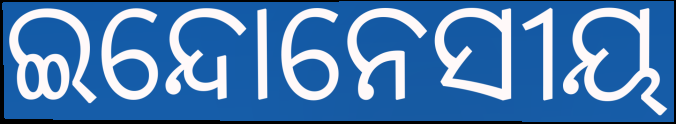
ଇନ୍ଦୋନେସୀୟ